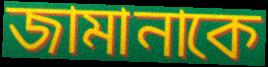
জামানাকে